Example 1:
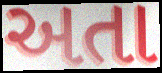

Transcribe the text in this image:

અતા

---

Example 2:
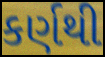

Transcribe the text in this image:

કર્ણથી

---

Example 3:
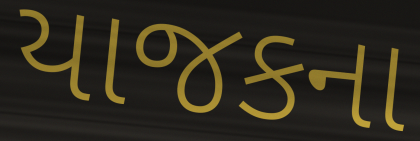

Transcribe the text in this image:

યાજકના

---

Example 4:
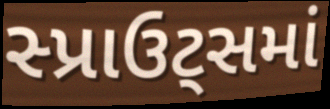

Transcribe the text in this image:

સ્પ્રાઉટ્સમાં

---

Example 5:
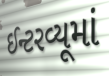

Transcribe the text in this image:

ઈન્ટરવ્યૂમાં